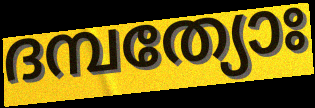
ദമ്പത്യോഃ